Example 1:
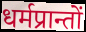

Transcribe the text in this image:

धर्मप्रान्तों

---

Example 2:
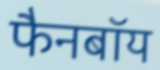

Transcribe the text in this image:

फैनबॉय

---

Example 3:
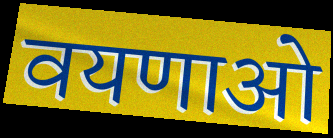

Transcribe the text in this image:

वयणाओ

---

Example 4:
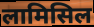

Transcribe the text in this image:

लामिसिल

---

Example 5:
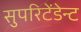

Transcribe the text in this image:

सुपरिटेंडेन्ट